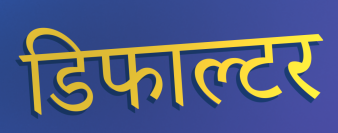
डिफाल्टर